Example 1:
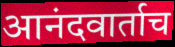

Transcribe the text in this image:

आनंदवार्ताच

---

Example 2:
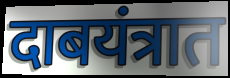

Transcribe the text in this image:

दाबयंत्रात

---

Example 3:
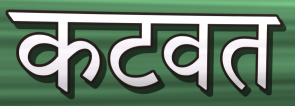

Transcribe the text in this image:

कटवत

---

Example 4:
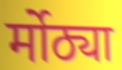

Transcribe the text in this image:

र्मोठ्या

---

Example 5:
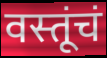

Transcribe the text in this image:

वस्तूंचं